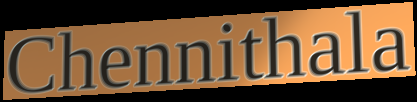
Chennithala